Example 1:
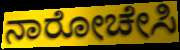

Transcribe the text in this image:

ನಾರೋಚೇಸಿ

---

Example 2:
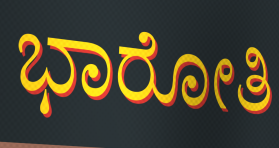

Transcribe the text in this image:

ಭಾರೋತಿ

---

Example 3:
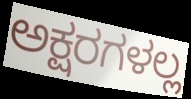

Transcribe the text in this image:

ಅಕ್ಷರಗಳಲ್ಲ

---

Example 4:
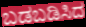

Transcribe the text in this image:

ಬಡಬಡಿಸಿದ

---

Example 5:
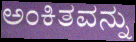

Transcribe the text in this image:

ಅಂಕಿತವನ್ನು